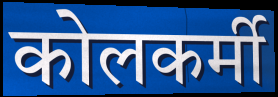
कोलकर्मी